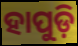
ହାପୁଡ଼ି